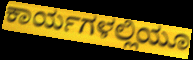
ಕಾರ್ಯಗಳಲ್ಲಿಯೂ